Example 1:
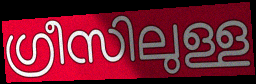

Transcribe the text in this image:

ഗ്രീസിലുള്ള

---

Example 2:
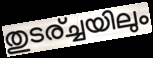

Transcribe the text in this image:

തുടര്ച്ചയിലും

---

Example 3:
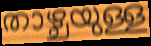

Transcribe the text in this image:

താഴ്ചയുള്ള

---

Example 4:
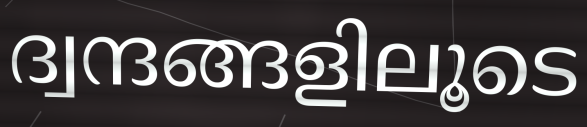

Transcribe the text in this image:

ദ്വന്ദങ്ങളിലൂടെ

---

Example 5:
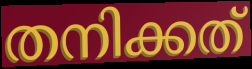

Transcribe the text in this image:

തനിക്കത്